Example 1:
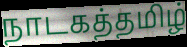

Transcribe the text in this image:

நாடகத்தமிழ்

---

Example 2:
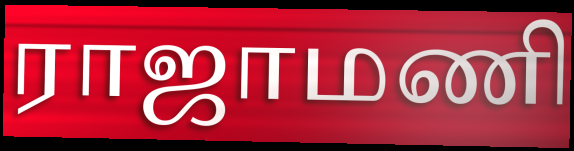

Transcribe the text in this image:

ராஜாமணி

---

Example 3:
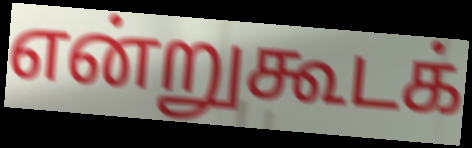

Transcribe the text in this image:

என்றுகூடக்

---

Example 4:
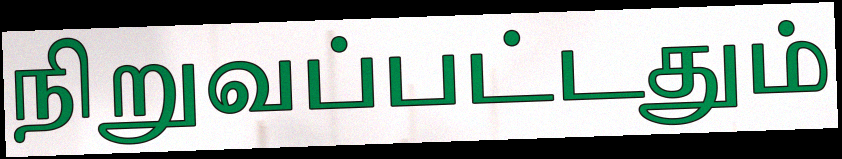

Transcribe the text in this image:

நிறுவப்பட்டதும்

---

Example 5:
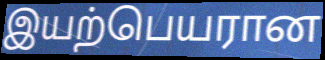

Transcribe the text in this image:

இயற்பெயரான